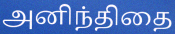
அனிந்திதை